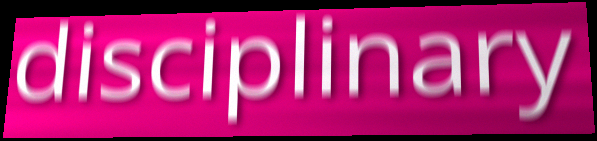
disciplinary